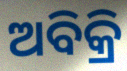
ଅବିକ୍ରି